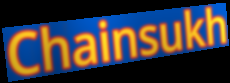
Chainsukh